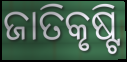
ଜାତିକୃଷ୍ଟି